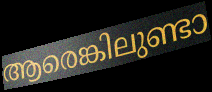
ആരെങ്കിലുണ്ടാ